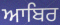
ਆਬਿਰ